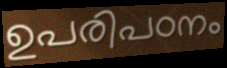
ഉപരിപഠനം